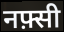
नफ़्सी